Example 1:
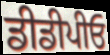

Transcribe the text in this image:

ਡੀਡੀਪੀਓ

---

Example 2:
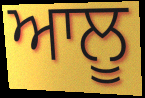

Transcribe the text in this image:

ਆਲੂ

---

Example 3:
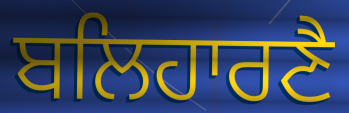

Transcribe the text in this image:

ਬਲਿਹਾਰਣੈ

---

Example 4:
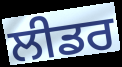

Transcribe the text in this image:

ਲੀਡਰ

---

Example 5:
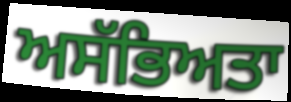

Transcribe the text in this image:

ਅਸੱਭਿਅਤਾ